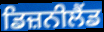
ਡਿਜ਼ਨੀਲੈਂਡ